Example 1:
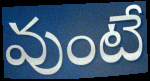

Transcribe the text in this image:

వుంటే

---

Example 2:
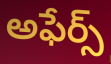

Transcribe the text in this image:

అఫేర్స్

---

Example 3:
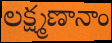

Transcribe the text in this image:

లక్ష్మణానాం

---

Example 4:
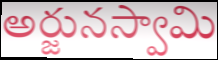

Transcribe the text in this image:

అర్జునస్వామి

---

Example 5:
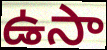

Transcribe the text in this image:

ఉసా